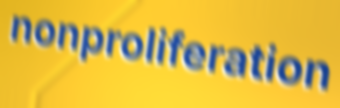
nonproliferation